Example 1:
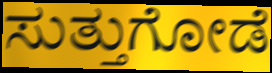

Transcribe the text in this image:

ಸುತ್ತುಗೋಡೆ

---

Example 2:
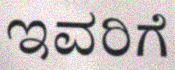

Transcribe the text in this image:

ಇವರಿಗೆ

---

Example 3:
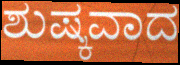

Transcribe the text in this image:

ಶುಷ್ಕವಾದ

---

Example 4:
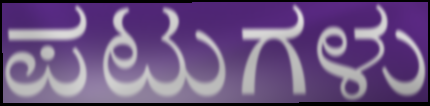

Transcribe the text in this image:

ಪಟುಗಳು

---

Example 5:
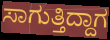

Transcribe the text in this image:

ಸಾಗುತ್ತಿದ್ದಾಗ